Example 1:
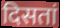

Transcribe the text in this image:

दिसतां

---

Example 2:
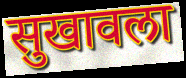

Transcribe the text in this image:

सुखावला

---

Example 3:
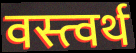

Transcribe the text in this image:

वस्त्वर्थ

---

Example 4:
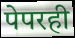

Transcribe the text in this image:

पेपरही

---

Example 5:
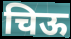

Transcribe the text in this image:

चिऊ